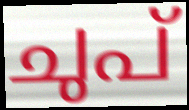
ചുപ്